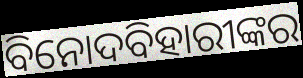
ବିନୋଦବିହାରୀଙ୍କର